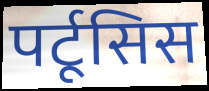
पर्टूसिस